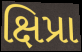
ક્ષિપ્રા